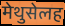
मेथुसेलह